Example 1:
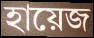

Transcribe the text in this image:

হায়েজ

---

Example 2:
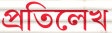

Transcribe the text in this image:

প্রতিলেখ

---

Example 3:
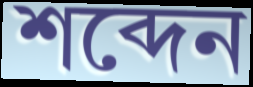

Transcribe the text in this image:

শব্দেন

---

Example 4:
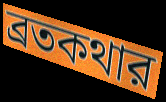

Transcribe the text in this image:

ব্রতকথার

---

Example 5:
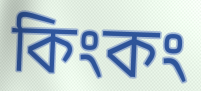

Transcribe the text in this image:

কিংকং